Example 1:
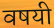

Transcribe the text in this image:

वषयी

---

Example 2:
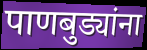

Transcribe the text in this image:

पाणबुड्यांना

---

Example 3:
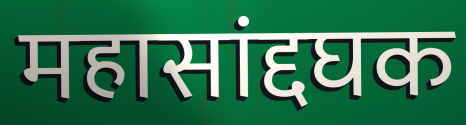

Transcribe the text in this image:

महासांद्दघक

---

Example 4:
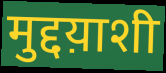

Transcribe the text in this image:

मुद्दय़ाशी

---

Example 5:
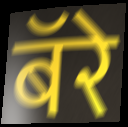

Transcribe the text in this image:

बॅरे